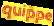
quippe